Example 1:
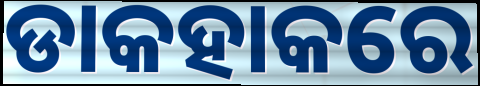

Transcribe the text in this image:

ଡାକହାକରେ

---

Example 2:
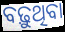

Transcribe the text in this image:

ବଢ଼ୁଥିବା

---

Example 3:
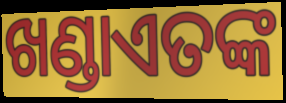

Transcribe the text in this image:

ଖଣ୍ଡାଏତଙ୍କ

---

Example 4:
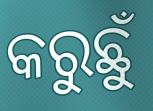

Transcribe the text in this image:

କରୁଛୁଁ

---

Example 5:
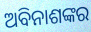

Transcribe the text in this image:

ଅବିନାଶଙ୍କର